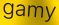
gamy